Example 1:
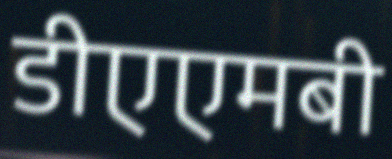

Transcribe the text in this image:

डीएएमबी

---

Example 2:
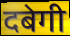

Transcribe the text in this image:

दबेगी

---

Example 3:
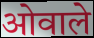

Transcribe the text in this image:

ओवाले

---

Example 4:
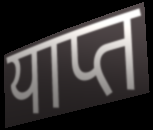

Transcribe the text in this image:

याप्त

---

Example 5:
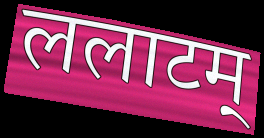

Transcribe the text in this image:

ललाटम्